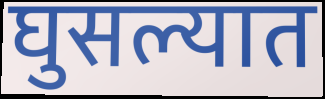
घुसल्यात